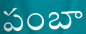
పంబా